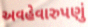
અવહેવારુપણું